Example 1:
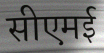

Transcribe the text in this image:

सीएमई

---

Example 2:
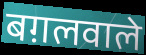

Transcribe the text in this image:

बग़लवाले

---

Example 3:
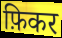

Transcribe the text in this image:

फ़िकर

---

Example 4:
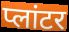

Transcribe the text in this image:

प्लांटर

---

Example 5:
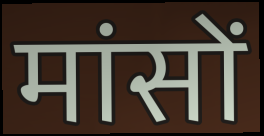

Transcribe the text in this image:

मांसों